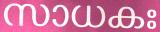
സാധകഃ